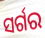
ସର୍ଗର